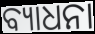
ବ୍ୟାଧନା